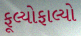
ફૂલ્યોફાલ્યો